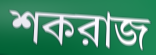
শকরাজ